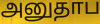
அனுதாப